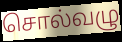
சொல்வழு